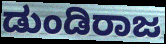
ಡುಂಡಿರಾಜ